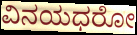
ವಿನಯಧರೋ